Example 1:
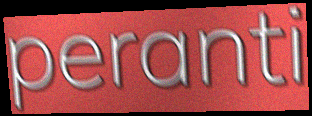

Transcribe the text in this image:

peranti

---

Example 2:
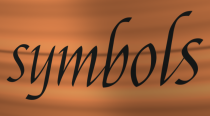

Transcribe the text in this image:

symbols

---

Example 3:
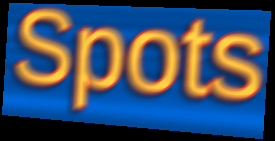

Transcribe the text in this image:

Spots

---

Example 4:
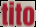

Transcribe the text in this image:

tito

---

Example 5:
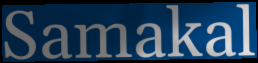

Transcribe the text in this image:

Samakal